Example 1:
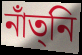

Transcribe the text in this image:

নাঁত্‌নি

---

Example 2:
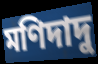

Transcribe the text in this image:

মণিদাদু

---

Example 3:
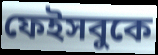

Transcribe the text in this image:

ফেইসবুকে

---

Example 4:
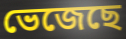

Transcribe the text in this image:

ভেজেছে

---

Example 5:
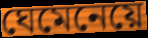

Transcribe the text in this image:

ঘেমেনেয়ে